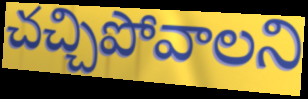
చచ్చిపోవాలని